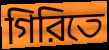
গিরিতে